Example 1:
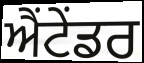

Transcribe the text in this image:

ਐਂਟੇਂਡਰ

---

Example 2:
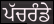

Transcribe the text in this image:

ਪੱਚਰੰਡੇ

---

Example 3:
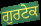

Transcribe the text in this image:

ਗੁਰਟੇਕ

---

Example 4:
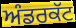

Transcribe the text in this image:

ਅੰਡਰਕੱਟ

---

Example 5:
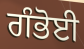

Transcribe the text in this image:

ਗੰਭੋਈ